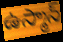
ఉస్మాన్